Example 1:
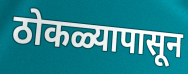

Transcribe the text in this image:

ठोकळ्यापासून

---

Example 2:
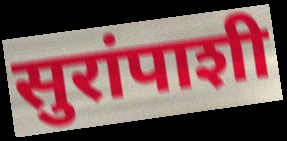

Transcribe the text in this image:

सुरांपाशी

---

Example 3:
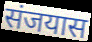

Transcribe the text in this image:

संजयास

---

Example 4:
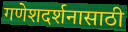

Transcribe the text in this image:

गणेशदर्शनासाठी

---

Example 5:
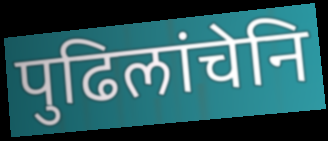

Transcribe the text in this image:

पुढिलांचेनि